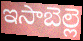
ఇసాబెల్లె